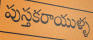
పుస్తకరాయుళ్ళ